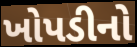
ખોપડીનો